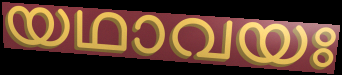
യഥാവയഃ